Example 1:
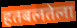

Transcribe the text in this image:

हतबलतेला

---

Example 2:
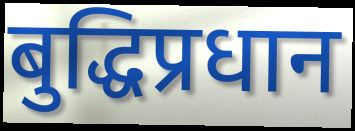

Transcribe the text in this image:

बुद्धिप्रधान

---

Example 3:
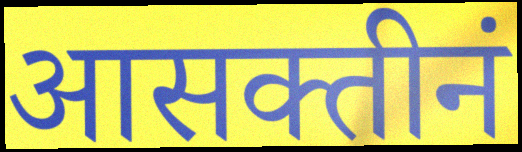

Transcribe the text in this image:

आसक्तीनं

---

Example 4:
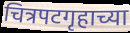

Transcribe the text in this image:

चित्रपटगृहाच्या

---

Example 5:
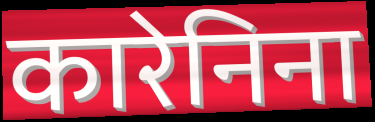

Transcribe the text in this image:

कारेनिना